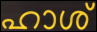
ഹാശ്